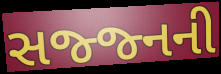
સજ્જ્નની